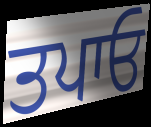
ਤਪਾਓ